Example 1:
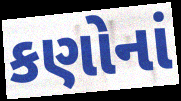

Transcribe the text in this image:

કણોનાં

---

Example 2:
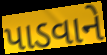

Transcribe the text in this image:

પાડવાને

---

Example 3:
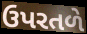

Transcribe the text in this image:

ઉપરતળે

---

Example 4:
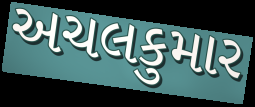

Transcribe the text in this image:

અચલકુમાર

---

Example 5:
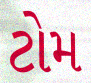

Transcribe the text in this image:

ટોમ